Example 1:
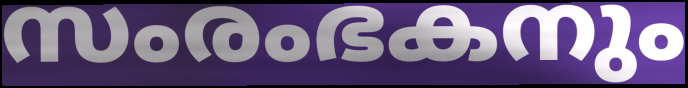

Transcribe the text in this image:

സംരംഭകനും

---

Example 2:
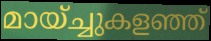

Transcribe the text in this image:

മായ്ച്ചുകളഞ്ഞ്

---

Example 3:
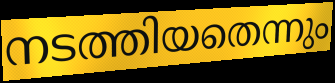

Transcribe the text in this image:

നടത്തിയതെന്നും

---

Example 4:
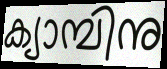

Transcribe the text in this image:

ക്യാമ്പിനു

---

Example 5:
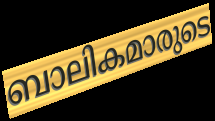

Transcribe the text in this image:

ബാലികമാരുടെ